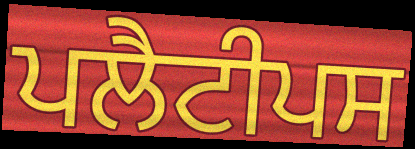
ਪਲੈਟੀਪਸ